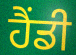
ਹੈਂਡੀ